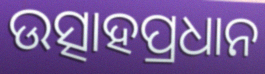
ଉତ୍ସାହପ୍ରଧାନ